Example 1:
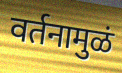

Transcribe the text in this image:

वर्तनामुळं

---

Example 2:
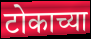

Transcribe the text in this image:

टोकाच्या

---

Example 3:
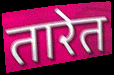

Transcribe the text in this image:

तारेत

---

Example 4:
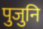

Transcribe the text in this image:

पुजुनि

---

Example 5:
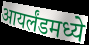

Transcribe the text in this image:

आयर्लंडमध्ये